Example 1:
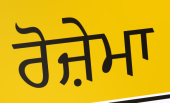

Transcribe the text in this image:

ਰੋਜ਼ੇਮਾ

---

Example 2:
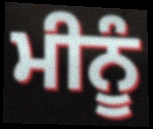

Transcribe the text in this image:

ਮੀਨੂੰ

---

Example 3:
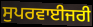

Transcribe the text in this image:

ਸੁਪਰਵਾਈਜਰੀ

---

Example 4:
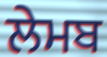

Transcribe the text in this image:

ਲੇਮਬ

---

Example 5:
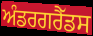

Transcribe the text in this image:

ਅੰਡਰਗਰੈੱਡਸ